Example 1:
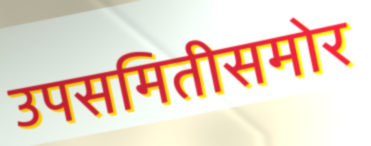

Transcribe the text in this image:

उपसमितीसमोर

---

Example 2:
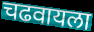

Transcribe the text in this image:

चढवायला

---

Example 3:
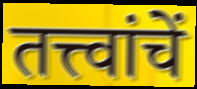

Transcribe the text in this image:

तत्त्वांचें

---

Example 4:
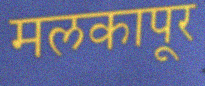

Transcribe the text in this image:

मलकापूर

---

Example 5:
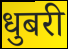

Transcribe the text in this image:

धुबरी